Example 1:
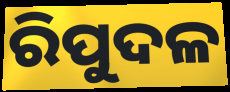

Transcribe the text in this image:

ରିପୁଦଳ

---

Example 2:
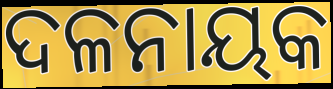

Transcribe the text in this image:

ଦଳନାୟକ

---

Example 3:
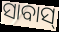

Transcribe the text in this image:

ସାବାସ୍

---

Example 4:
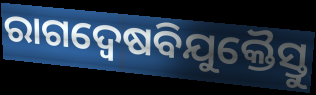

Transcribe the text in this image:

ରାଗଦ୍ୱେଷବିଯୁକ୍ତୈସ୍ତୁ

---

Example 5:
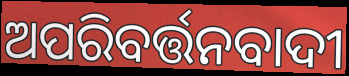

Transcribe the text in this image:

ଅପରିବର୍ତ୍ତନବାଦୀ